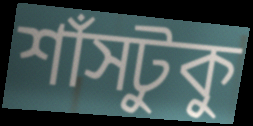
শাঁসটুকু